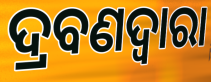
ଦ୍ରବଣଦ୍ବାରା